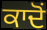
ਕਾਦੋਂ